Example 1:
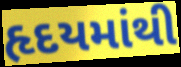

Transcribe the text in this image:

હૃદયમાંથી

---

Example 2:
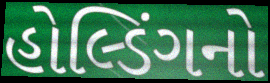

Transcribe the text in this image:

હોલ્ડિંગનો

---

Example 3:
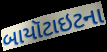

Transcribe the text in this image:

બાયૉટાઇટના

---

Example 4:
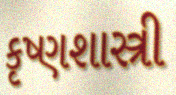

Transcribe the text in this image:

કૃષ્ણશાસ્ત્રી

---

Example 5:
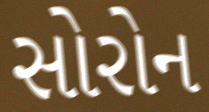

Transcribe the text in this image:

સોરોન